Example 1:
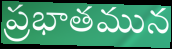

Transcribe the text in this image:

ప్రభాతమున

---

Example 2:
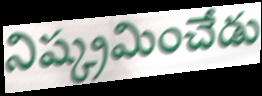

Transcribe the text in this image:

నిష్క్రమించేడు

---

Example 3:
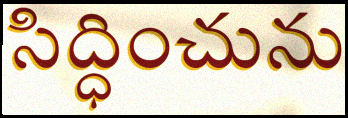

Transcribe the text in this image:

సిద్ధించును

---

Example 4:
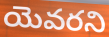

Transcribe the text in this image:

యెవరని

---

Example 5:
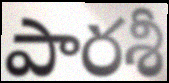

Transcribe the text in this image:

పారశీ